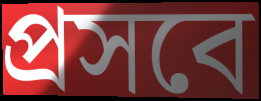
প্রসবে